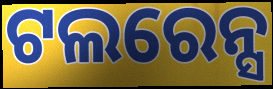
ଟଲରେନ୍ସ